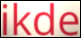
ikde